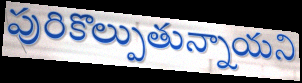
పురికొల్పుతున్నాయని